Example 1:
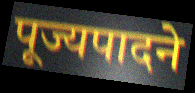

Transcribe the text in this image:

पूज्यपादने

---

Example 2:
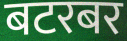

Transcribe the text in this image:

बटरबर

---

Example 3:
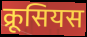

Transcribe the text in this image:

क्रूसियस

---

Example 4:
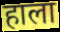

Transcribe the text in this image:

हाला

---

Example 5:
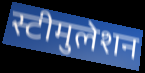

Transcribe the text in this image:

स्टीमुलेशन